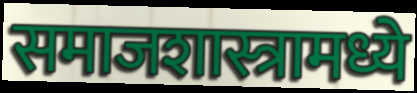
समाजशास्त्रामध्ये